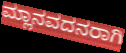
ಮ್ಲಾನವದನರಾಗಿ